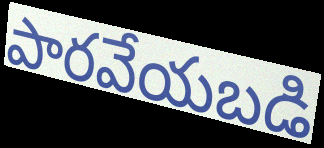
పారవేయబడి